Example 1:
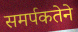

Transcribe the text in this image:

समर्पकतेने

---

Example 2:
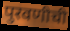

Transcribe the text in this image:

पुरवणीची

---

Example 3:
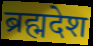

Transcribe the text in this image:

ब्रह्मदेश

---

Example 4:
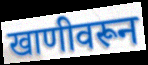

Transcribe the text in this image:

खाणीवरून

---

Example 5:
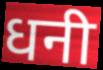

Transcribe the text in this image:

धनी